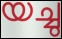
യച്ചു